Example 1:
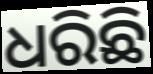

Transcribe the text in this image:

ଧରିଛି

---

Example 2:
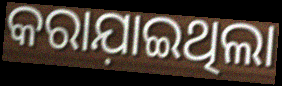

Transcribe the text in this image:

କରାଯ଼ାଇଥିଲା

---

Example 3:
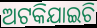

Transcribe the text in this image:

ଅଟକିଯାଇଚି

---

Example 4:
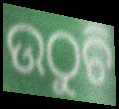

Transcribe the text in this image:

ଉଠୁଚି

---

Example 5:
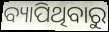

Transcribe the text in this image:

ବ୍ୟାପିଥିବାରୁ